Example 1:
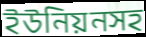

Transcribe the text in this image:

ইউনিয়নসহ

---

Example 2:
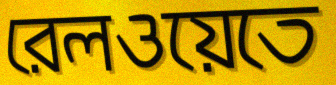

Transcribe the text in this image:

রেলওয়েতে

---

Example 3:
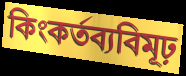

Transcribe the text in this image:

কিংকর্তব্যবিমূঢ়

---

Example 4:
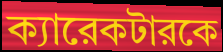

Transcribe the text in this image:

ক্যারেকটারকে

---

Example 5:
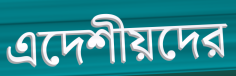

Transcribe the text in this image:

এদেশীয়দের